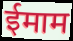
ईमाम